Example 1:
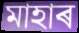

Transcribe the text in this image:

মাহাৰ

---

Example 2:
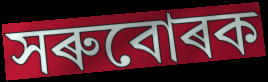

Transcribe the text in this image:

সৰুবোৰক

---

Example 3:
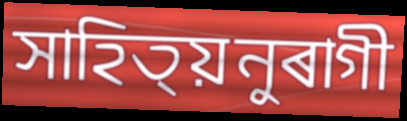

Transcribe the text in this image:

সাহিত্য়নুৰাগী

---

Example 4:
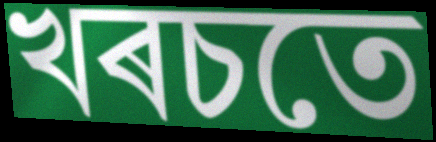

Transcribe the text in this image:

খৰচতে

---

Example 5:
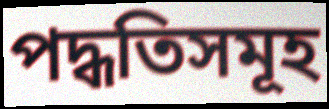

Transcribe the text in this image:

পদ্ধতিসমূহ